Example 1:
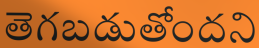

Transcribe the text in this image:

తెగబడుతోందని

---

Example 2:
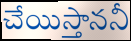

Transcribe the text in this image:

చేయిస్తాననీ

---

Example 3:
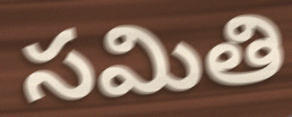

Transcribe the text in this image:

సమితి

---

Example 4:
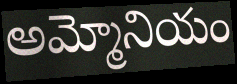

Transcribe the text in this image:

అమ్మోనియం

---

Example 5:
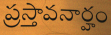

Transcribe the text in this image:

ప్రస్తావనార్హం